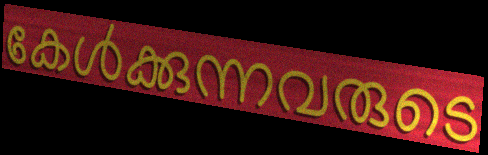
കേൾക്കുന്നവരുടെ